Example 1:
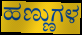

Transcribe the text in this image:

ಹಣ್ಣುಗಳ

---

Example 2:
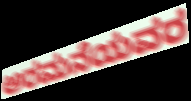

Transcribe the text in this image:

ಅರಮನೆಯವರ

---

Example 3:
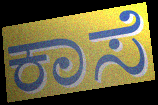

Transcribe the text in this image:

ಕಾಸೆ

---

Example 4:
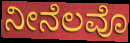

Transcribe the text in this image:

ನೀನೆಲವೊ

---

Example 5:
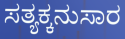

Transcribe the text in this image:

ಸತ್ಯಕ್ಕನುಸಾರ